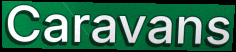
Caravans